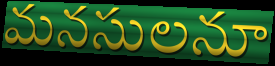
మనసులనూ